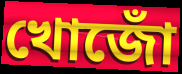
খোজোঁ